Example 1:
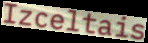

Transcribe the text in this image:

Izceltais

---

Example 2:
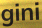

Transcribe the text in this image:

gini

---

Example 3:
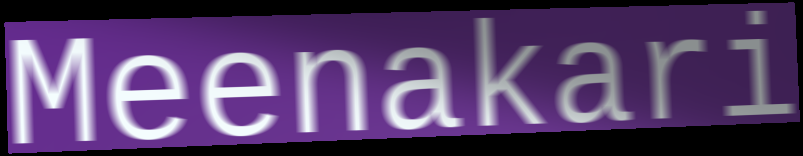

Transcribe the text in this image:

Meenakari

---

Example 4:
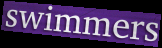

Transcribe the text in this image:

swimmers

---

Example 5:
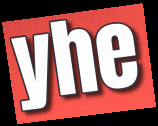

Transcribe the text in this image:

yhe